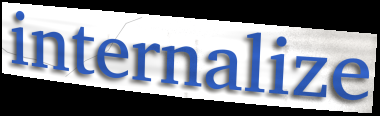
internalize